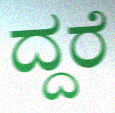
ದ್ದರೆ